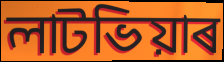
লাটভিয়াৰ